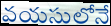
వయసులోనే